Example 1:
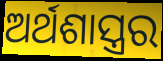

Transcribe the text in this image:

ଅର୍ଥଶାସ୍ତ୍ରର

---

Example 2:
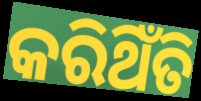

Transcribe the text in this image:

କରିଥିଁତି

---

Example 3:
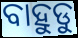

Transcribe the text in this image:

ବାହୁଡୁ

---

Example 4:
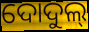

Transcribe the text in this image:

ଦୋଦୁଲ୍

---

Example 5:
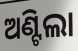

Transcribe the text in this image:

ଅଣ୍ଟିଲା